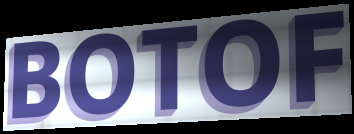
BOTOF